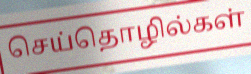
செய்தொழில்கள்